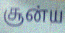
சூன்ய